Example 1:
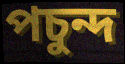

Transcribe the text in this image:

পচুন্দ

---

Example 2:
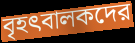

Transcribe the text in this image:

বৃহৎবালকদের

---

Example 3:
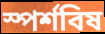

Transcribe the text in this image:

স্পর্শবিষ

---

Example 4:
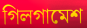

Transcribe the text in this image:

গিলগামেশ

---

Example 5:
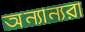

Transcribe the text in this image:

অন্যান্যরা